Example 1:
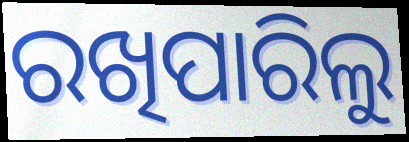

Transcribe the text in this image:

ରଖିପାରିଲୁ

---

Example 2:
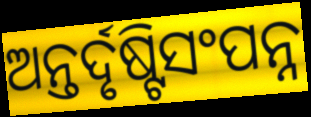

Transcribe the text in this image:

ଅନ୍ତର୍ଦୃଷ୍ଟିସଂପନ୍ନ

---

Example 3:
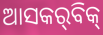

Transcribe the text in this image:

ଆସକର୍‌ବିକ୍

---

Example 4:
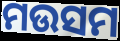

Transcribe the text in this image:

ମଉସମ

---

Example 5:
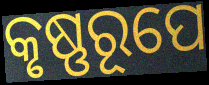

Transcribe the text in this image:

କୃଷ୍ଣରୂପେ